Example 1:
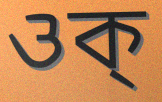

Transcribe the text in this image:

ওক্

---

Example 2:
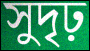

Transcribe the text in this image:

সুদৃঢ়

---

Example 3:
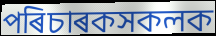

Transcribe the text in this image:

পৰিচাৰকসকলক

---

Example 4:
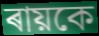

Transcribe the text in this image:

ৰায়কে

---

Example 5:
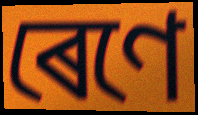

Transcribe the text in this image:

ৰেণে